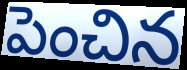
పెంచిన